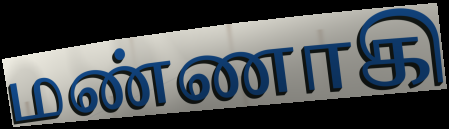
மண்ணாகி